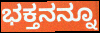
ಭಕ್ತನನ್ನೂ